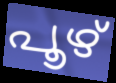
പൂഴ്